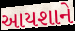
આયશાને